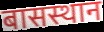
बासस्थान